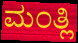
ಮಂತ್ಲಿ